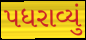
પધરાવ્યું